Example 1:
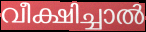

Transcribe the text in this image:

വീക്ഷിച്ചാൽ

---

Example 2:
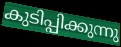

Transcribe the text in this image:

കുടിപ്പിക്കുന്നു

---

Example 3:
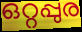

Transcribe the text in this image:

ഒറ്റപ്പുര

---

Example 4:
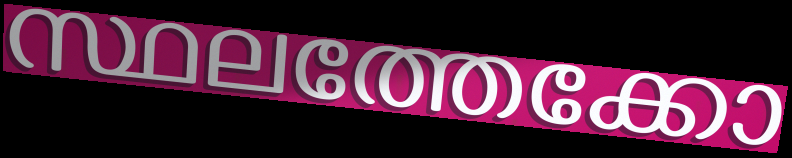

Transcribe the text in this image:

സ്ഥലത്തേക്കോ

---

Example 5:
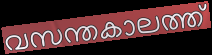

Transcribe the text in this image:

വസന്തകാലത്ത്